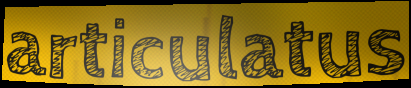
articulatus